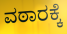
ವಠಾರಕ್ಕೆ